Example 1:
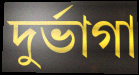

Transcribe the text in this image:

দুর্ভাগা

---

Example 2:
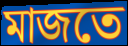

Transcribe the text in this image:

মাজতে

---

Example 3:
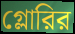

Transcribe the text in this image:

গ্লোরির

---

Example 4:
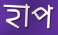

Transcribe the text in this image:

হাপ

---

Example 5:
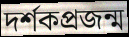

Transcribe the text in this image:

দর্শকপ্রজন্ম